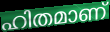
ഹിതമാണ്